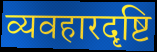
व्यवहारदृष्टि